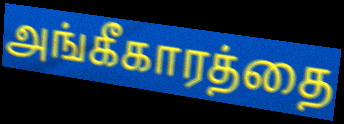
அங்கீகாரத்தை